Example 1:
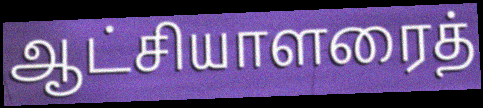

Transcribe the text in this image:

ஆட்சியாளரைத்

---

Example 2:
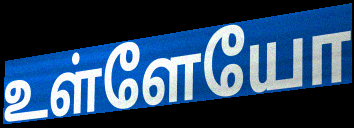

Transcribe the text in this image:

உள்ளேயோ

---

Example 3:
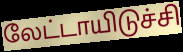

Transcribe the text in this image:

லேட்டாயிடுச்சி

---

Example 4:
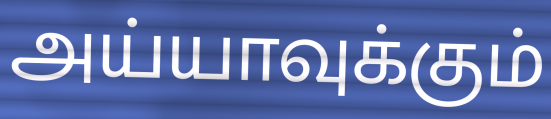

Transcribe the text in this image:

அய்யாவுக்கும்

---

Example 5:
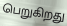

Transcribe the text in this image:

பெறுகிறது